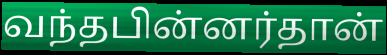
வந்தபின்னர்தான்